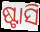
ଷ୍ଟାସି